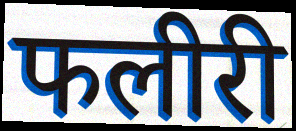
फलीरी